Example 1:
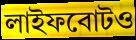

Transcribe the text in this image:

লাইফবোটও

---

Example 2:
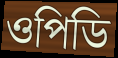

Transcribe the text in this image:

ওপিডি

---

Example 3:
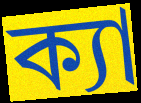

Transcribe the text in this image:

ক্যা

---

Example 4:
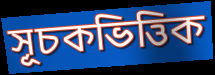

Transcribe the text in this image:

সূচকভিত্তিক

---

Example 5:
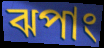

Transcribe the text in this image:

ঝপাং